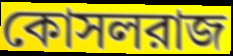
কোসলরাজ